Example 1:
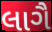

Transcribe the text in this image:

લાગૈ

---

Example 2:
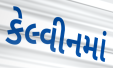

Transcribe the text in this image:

કેલ્વીનમાં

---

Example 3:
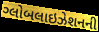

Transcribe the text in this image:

ગ્લોબલાઇઝેશનની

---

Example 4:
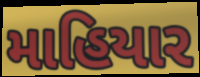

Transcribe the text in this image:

માહિયાર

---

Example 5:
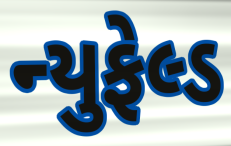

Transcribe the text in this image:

ન્યુફેલ્ડ